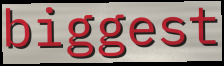
biggest